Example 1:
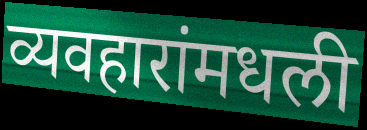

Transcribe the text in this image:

व्यवहारांमधली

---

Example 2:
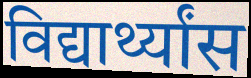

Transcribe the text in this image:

विद्यार्थ्यांस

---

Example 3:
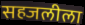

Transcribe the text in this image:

सहजलीला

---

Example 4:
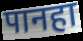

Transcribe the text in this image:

पानहा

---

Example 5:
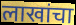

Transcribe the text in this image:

लाखांचा